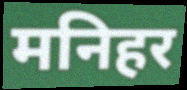
मनिहर